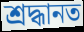
শ্রদ্ধানত